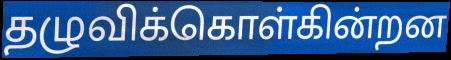
தழுவிக்கொள்கின்றன